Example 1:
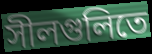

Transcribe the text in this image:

সীলগুলিতে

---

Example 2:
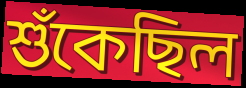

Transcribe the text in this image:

শুঁকেছিল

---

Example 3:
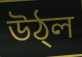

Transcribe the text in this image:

উঠ্ল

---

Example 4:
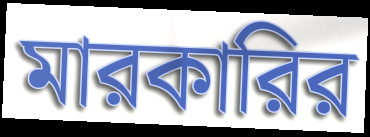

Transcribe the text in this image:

মারকারির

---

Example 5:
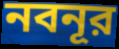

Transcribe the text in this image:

নবনূর